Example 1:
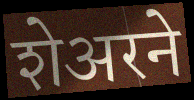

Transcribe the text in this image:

शेअरने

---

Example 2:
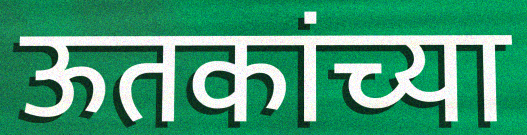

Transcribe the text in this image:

ऊतकांच्या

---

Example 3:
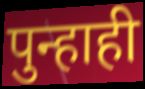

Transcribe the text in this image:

पुन्हाही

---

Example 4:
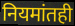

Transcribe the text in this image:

नियमांतही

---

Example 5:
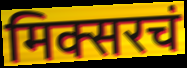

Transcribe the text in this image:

मिक्सरचं